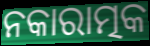
ନକାରାତ୍ମକ